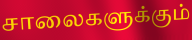
சாலைகளுக்கும்